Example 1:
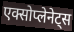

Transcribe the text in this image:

एक्सोप्लेनेट्स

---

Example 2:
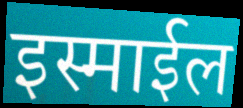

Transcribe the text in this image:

इस्माईल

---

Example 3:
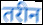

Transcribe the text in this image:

तरीन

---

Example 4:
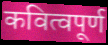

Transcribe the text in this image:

कवित्वपूर्ण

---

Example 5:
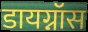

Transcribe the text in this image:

डायग्नॉस